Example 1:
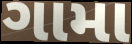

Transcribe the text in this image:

ગામા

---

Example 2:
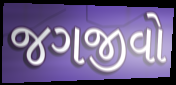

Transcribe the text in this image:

જગજીવો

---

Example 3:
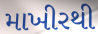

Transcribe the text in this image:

માખીરથી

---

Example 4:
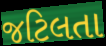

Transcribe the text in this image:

જટિલતા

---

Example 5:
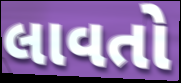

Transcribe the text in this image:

લાવતો